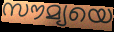
സൗമ്യയെ